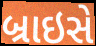
બ્રાઇસે